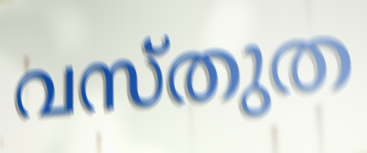
വസ്തുത